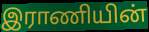
இராணியின்